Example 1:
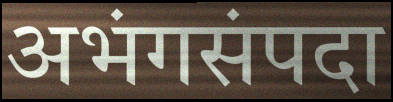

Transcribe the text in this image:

अभंगसंपदा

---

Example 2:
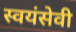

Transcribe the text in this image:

स्वयंसेवी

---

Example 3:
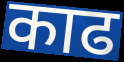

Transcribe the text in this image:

काढ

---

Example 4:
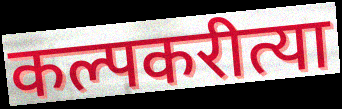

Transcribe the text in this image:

कल्पकरीत्या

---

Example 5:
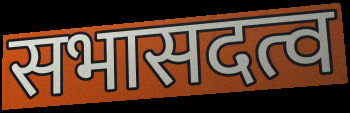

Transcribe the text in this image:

सभासदत्व